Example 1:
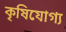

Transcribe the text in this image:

কৃষিযোগ্য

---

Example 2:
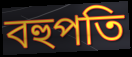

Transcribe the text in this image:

বহুপতি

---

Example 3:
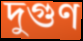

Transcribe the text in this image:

দুগুণ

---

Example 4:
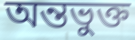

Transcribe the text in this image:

অন্তভুক্ত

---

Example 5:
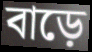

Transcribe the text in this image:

বাড়ে